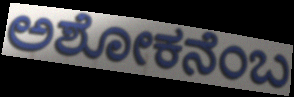
ಅಶೋಕನೆಂಬ